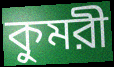
কুমরী